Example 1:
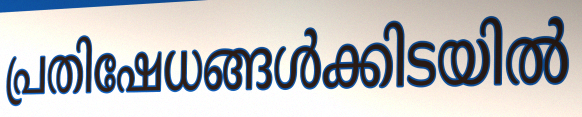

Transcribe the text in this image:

പ്രതിഷേധങ്ങൾക്കിടയിൽ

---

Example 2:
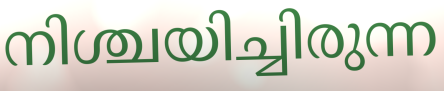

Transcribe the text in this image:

നിശ്ചയിച്ചിരുന്ന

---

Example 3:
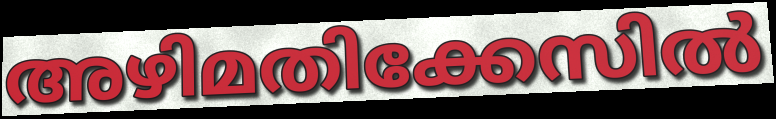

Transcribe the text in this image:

അഴിമതിക്കേസിൽ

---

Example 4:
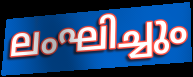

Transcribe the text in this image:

ലംഘിച്ചും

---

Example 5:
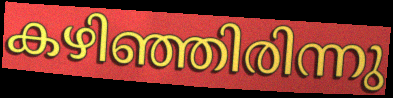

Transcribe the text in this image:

കഴിഞ്ഞിരിന്നു